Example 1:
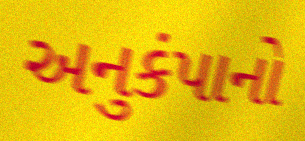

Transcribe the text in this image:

અનુકંપાનો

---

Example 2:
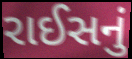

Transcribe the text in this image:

રાઈસનું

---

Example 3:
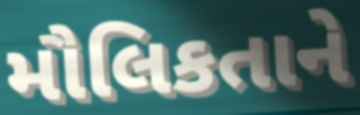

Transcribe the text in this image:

મૌલિકતાને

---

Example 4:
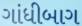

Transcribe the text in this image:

ગાંધીબાગ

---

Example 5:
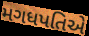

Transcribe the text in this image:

મગધપતિએ